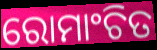
ରୋମାଂଚିତ